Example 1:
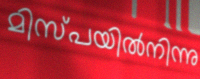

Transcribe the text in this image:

മിസ്പയിൽനിന്നു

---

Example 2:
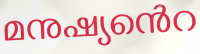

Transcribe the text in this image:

മനുഷ്യൻെറ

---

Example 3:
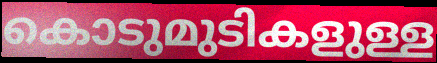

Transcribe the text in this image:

കൊടുമുടികളുള്ള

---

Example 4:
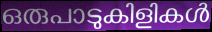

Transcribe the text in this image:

ഒരുപാടുകിളികൾ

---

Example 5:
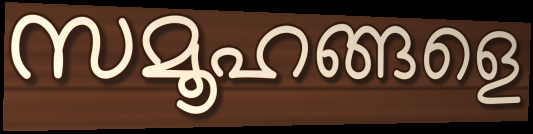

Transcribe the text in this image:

സമൂഹങ്ങളെ